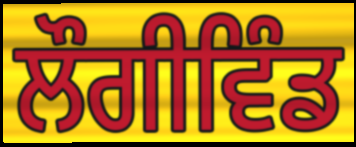
ਲੌਗੀਵਿੰਡ